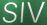
SIV